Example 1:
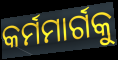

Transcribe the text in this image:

କର୍ମମାର୍ଗକୁ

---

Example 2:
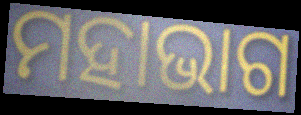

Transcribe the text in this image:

ମହାଭାଗ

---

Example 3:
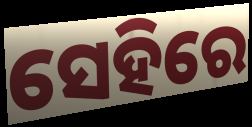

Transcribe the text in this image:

ସେହିରେ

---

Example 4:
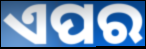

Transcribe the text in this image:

ଏପର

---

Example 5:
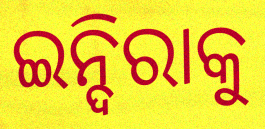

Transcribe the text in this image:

ଇନ୍ଦିରାକୁ